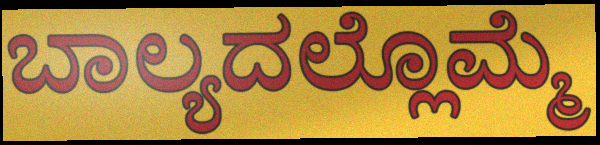
ಬಾಲ್ಯದಲ್ಲೊಮ್ಮೆ